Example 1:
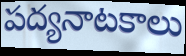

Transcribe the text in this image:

పద్యనాటకాలు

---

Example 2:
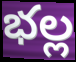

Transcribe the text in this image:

భల్ల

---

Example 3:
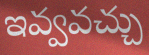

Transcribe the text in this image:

ఇవ్వవచ్చు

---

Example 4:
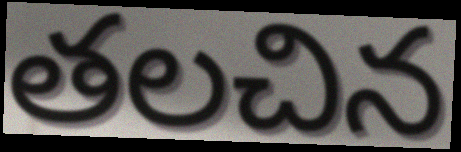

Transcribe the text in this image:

తలచిన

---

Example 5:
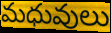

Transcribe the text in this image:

మధువులు